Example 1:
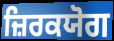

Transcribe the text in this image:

ਜ਼ਿਰਕਯੋਗ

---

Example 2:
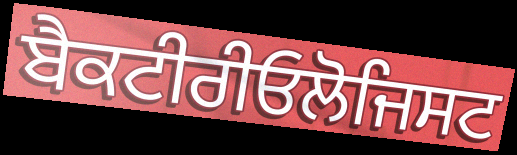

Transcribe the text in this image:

ਬੈਕਟੀਰੀਓਲੋਜਿਸਟ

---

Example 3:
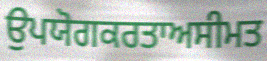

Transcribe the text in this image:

ਉਪਯੋਗਕਰਤਾਅਸੀਮਤ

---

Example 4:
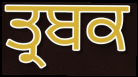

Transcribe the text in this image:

ਤ੍ਰਬਕ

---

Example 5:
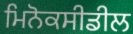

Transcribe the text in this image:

ਮਿਨੋਕਸੀਡੀਲ